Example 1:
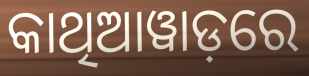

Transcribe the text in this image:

କାଥିଆୱାଡ଼ରେ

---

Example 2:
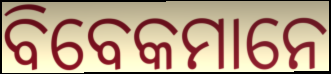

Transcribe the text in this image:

ବିବେକମାନେ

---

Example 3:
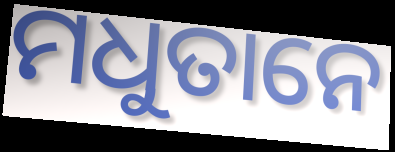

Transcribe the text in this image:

ମଧୁତାନେ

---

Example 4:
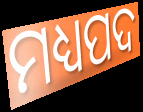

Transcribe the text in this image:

ମଧ୍ୟପଦ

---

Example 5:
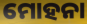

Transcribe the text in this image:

ମୋହନା